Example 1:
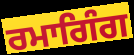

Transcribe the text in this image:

ਰਮਾਗਿੰਗ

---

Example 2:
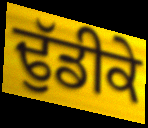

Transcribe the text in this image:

ਢੁੱਡੀਕੇ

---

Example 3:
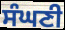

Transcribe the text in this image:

ਸੰਘਣੀ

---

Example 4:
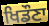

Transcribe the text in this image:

ਖਿਡੌਣਾ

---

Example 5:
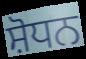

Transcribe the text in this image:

ਸ਼ੋਧਨ